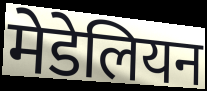
मेडेलियन